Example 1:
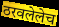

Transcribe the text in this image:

ठरवलेलेच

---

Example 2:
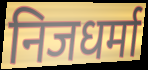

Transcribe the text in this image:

निजधर्मा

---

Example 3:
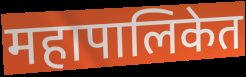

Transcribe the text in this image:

महापालिकेत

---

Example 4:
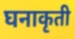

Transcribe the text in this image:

घनाकृती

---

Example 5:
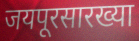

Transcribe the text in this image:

जयपूरसारख्या